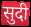
सुदी